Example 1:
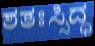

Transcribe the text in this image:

ಶತಃಸ್ಸಿದ್ಧ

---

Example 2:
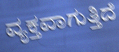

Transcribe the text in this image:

ವ್ಯಕ್ತವಾಗುತ್ತಿದೆ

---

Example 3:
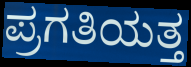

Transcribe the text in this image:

ಪ್ರಗತಿಯತ್ತ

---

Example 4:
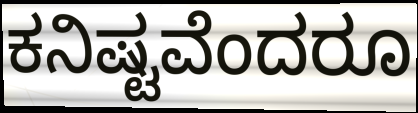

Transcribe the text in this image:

ಕನಿಷ್ಟವೆಂದರೂ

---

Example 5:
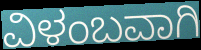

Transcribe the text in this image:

ವಿಳಂಬವಾಗಿ